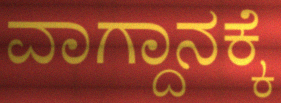
ವಾಗ್ದಾನಕ್ಕೆ